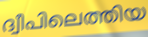
ദ്വീപിലെത്തിയ